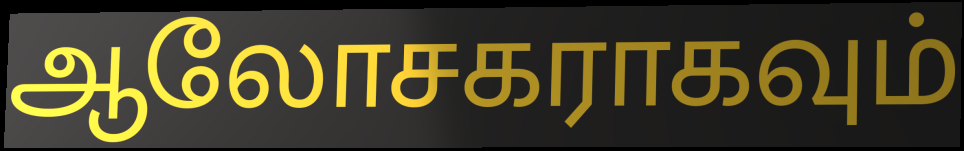
ஆலோசகராகவும்